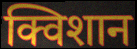
क्विशान